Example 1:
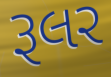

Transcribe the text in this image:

રૂલર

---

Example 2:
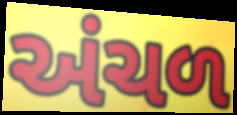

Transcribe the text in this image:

અંચળ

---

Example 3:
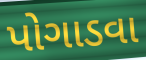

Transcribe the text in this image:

પોગાડવા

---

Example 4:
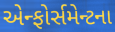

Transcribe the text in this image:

એન્ફોર્સમેન્ટના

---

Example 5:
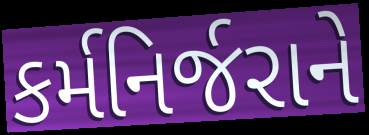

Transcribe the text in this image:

કર્મનિર્જરાને